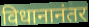
विधानानंतर